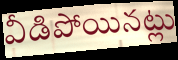
వీడిపోయినట్లు